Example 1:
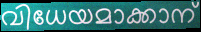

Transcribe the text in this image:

വിധേയമാക്കാന്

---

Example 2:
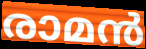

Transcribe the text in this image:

രാമൻ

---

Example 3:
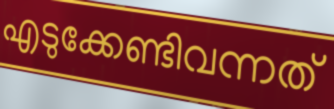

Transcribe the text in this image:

എടുക്കേണ്ടിവന്നത്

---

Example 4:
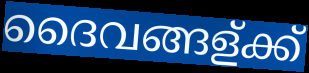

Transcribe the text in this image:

ദൈവങ്ങള്ക്ക്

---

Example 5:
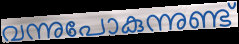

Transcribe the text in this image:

വന്നുപോകുന്നുണ്ട്